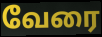
வேரை